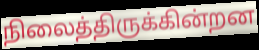
நிலைத்திருக்கின்றன